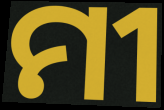
ମୀ